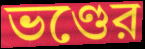
ভণ্ডের